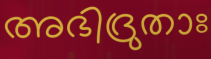
അഭിദ്രുതാഃ